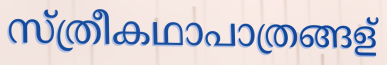
സ്ത്രീകഥാപാത്രങ്ങള്